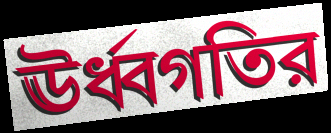
ঊর্ধ্বগতির